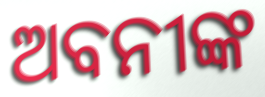
ଅବନୀଙ୍କ